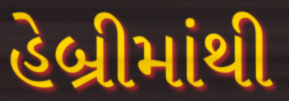
હેબ્રીમાંથી